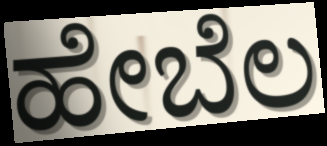
ಹೇಬೆಲ